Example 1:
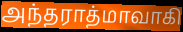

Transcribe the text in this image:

அந்தராத்மாவாகி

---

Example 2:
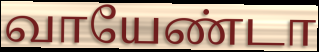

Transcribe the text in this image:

வாயேண்டா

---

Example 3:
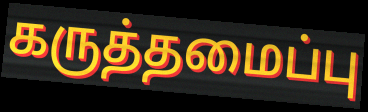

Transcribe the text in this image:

கருத்தமைப்பு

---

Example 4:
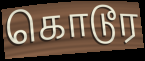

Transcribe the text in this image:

கொடூர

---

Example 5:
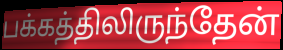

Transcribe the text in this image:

பக்கத்திலிருந்தேன்